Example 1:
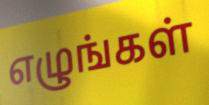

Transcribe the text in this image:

எழுங்கள்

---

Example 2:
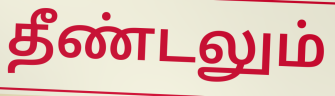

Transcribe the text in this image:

தீண்டலும்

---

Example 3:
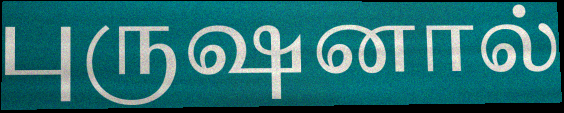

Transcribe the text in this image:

புருஷனால்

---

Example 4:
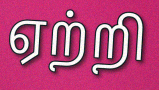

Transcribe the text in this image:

ஏற்றி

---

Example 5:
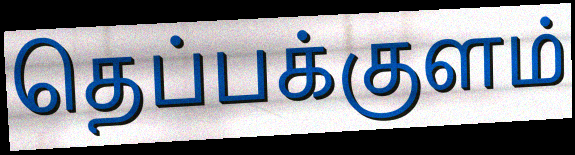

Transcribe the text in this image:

தெப்பக்குளம்